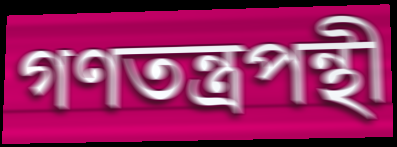
গণতন্ত্রপন্থী